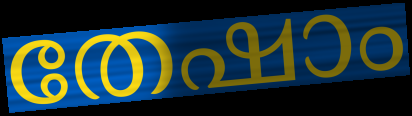
തേഷാം